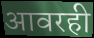
आवरही